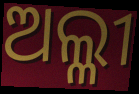
ଅଲ୍ଳୀ